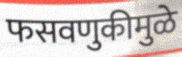
फसवणुकीमुळे